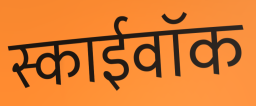
स्काईवॉक